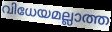
വിധേയമല്ലാത്ത